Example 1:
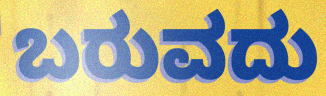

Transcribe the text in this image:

ಬರುವದು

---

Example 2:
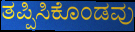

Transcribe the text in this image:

ತಪ್ಪಿಸಿಕೊಂಡವು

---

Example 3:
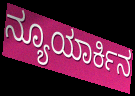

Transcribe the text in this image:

ನ್ಯೂಯಾರ್ಕಿನ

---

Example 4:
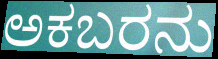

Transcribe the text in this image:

ಅಕಬರನು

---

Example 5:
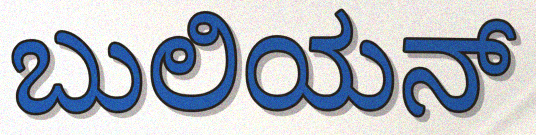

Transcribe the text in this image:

ಬುಲಿಯನ್